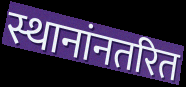
स्थानांनतरित